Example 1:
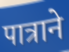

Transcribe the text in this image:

पात्राने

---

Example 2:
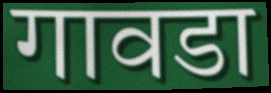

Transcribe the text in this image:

गावडा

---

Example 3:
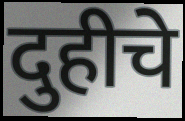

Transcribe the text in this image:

दुहीचे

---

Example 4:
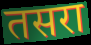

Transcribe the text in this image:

तसरा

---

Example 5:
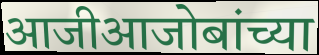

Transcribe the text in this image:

आजीआजोबांच्या